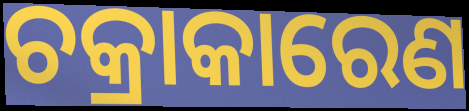
ଚକ୍ରାକାରେଣ